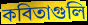
কবিতাগুলি